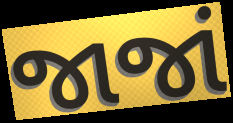
જાજાં